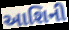
આશિની